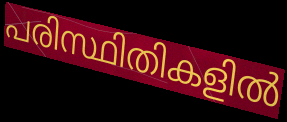
പരിസ്ഥിതികളിൽ